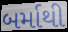
બર્માથી